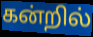
கன்றில்